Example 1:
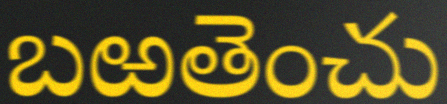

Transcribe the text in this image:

బఱతెంచు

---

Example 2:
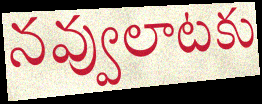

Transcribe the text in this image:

నవ్వులాటకు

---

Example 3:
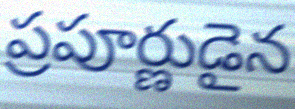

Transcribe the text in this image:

ప్రపూర్ణుడైన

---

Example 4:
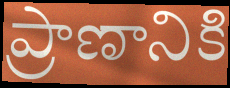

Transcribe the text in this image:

ప్రాణానికి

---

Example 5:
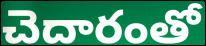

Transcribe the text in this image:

చెదారంతో